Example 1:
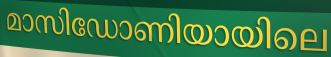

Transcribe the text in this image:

മാസിഡോണിയായിലെ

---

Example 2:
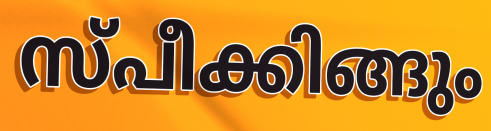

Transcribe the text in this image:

സ്പീക്കിങ്ങും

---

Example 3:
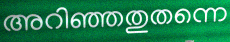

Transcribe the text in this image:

അറിഞ്ഞതുതന്നെ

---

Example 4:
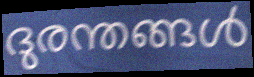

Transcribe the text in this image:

ദുരന്തങ്ങൾ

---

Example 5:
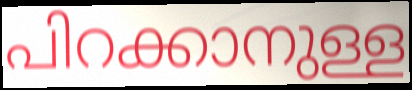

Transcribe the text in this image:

പിറക്കാനുള്ള